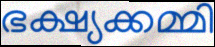
ഭക്ഷ്യക്കമ്മി